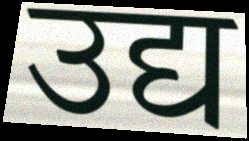
उद्य